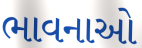
ભાવનાઓ